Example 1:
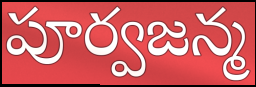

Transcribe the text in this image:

పూర్వజన్మ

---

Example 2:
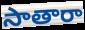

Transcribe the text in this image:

సాతారా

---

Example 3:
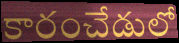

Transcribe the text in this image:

కారంచేడులో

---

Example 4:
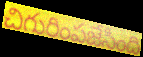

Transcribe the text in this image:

చిగురింపజేసింది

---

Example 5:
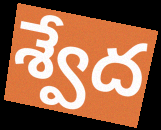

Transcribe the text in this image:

శ్వేద